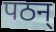
पठन्